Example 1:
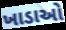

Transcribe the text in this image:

ખાડાઓ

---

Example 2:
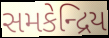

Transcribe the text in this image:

સમકેન્દ્રિય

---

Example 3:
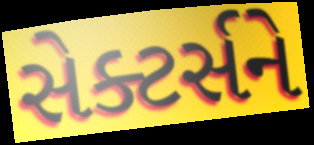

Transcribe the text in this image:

સેક્ટર્સને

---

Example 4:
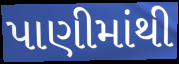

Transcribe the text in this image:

પાણીમાંથી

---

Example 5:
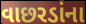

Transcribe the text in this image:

વાછરડાંના